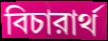
বিচারার্থ